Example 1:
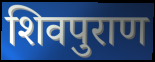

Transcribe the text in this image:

शिवपुराण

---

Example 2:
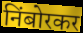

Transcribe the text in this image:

निंबोरकर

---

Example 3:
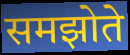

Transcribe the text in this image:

समझोते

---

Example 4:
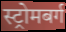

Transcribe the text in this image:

स्ट्रोमबर्ग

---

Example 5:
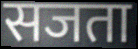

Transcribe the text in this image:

सजता